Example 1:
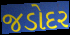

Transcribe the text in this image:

જડોદર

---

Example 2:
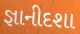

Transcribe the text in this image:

જ્ઞાનીદશા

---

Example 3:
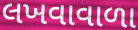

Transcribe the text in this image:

લખવાવાળા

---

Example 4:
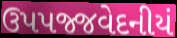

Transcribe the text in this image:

ઉપપજ્જવેદનીયં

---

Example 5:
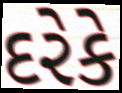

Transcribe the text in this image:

દરેકે